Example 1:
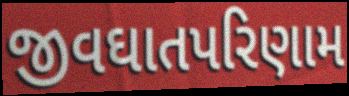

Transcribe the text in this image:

જીવઘાતપરિણામ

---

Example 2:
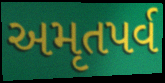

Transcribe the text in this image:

અમૃતપર્વ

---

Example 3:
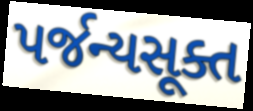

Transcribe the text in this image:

પર્જન્યસૂક્ત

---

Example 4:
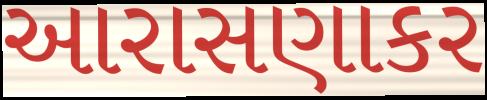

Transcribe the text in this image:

આરાસણાકર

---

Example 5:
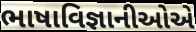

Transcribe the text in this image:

ભાષાવિજ્ઞાનીઓએ